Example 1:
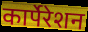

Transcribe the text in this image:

कार्पेरेशन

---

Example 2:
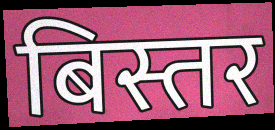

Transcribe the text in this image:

बिस्‍तर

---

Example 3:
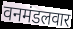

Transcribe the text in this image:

वनमंडलवार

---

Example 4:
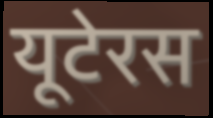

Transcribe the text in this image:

यूटेरस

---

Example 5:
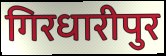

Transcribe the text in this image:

गिरधारीपुर